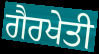
ਗੈਰਖੇਤੀ